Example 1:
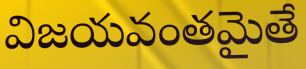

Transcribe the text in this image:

విజయవంతమైతే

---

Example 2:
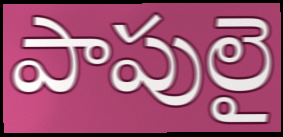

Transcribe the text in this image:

పాపులై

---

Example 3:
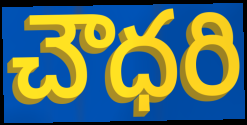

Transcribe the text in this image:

చౌధరి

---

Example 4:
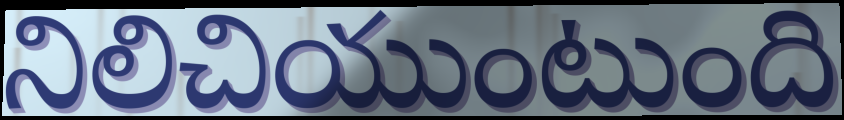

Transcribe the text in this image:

నిలిచియుంటుంది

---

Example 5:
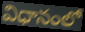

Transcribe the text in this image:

విధానంలో